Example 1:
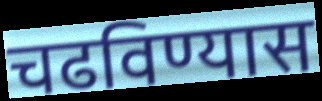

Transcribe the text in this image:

चढविण्यास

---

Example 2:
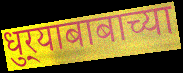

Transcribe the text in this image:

धुर्याबाबाच्या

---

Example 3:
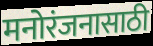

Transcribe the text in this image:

मनोरंजनासाठी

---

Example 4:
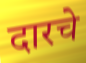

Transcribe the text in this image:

दारचे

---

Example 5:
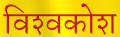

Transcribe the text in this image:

विश्वकोश